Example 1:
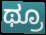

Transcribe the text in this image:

ಥ್ರೂ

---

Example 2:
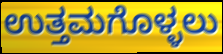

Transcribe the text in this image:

ಉತ್ತಮಗೊಳ್ಳಲು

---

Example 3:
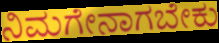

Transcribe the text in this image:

ನಿಮಗೇನಾಗಬೇಕು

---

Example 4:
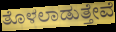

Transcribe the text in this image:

ತೊಳಲಾಡುತ್ತೇವೆ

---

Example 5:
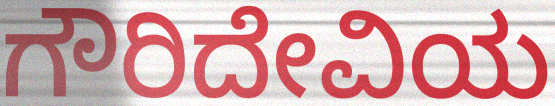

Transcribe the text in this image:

ಗೌರಿದೇವಿಯ